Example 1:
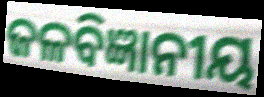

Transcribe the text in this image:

ଜଳବିଜ୍ଞାନୀୟ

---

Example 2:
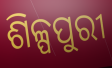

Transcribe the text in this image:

ଶିଳ୍ପପୁରୀ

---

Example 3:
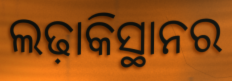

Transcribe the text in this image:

ଲଢ଼ାକିସ୍ଥାନର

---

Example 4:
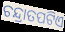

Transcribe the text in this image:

ଚନ୍ଦ୍ରାତପଟିଏ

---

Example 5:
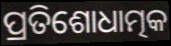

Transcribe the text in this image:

ପ୍ରତିଶୋଧାତ୍ମକ